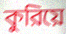
কুরিয়ে